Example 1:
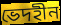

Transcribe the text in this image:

ভেদহীন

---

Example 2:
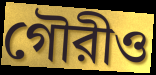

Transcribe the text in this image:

গৌরীও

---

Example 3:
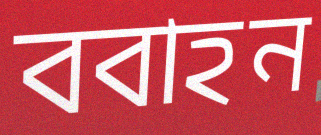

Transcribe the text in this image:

ববাহন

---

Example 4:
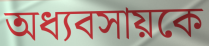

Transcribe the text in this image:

অধ্যবসায়কে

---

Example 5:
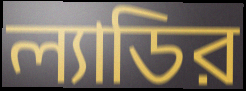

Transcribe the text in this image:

ল্যাডির